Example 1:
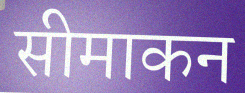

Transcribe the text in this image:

सीमाकन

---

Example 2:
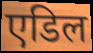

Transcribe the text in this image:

एडिल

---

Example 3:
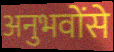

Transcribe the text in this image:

अनुभवोंसे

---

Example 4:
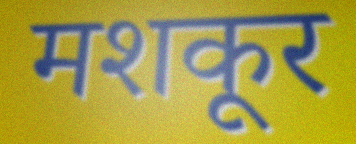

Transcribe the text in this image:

मशकूर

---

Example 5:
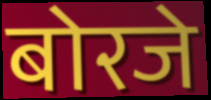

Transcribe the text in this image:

बोरजे